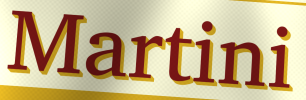
Martini